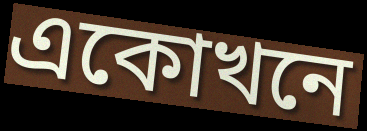
একোখনে